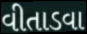
વીતાડવા